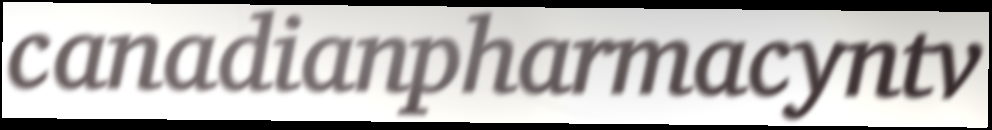
canadianpharmacyntv